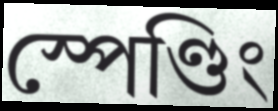
স্পেণ্ডিং